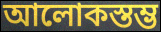
আলোকস্তম্ভ